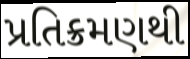
પ્રતિક્રમણથી